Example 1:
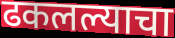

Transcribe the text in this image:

ढकलल्याचा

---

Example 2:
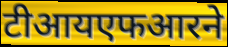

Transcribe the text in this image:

टीआयएफआरने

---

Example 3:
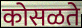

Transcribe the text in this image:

कोसळते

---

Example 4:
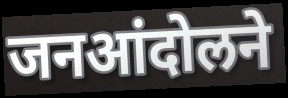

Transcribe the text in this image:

जनआंदोलने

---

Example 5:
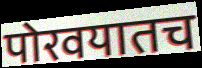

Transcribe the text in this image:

पोरवयातच